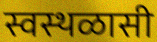
स्वस्थळासी